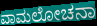
ವಾಮಲೋಚನಾ